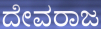
ದೇವರಾಜ